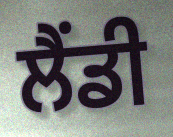
ਲੈਂਡੀ